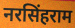
नरसिंहराम